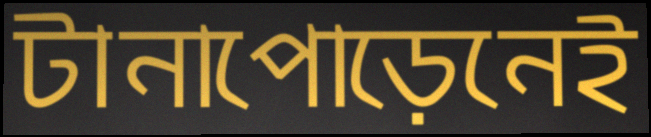
টানাপোড়েনেই